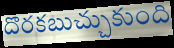
దొరకబుచ్చుకుంది